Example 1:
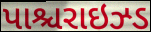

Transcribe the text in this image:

પાશ્ચરાઇઝ્ડ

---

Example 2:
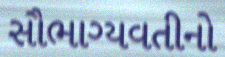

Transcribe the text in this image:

સૌભાગ્યવતીનો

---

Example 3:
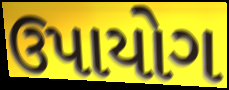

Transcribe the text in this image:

ઉપાયોગ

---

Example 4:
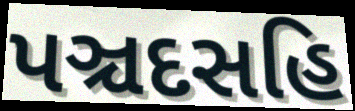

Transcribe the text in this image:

પઞ્ચદસહિ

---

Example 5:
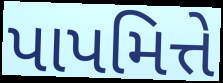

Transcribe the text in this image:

પાપમિત્તે